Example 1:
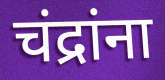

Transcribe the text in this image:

चंद्रांना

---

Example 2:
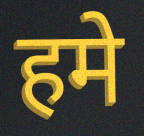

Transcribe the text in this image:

हमे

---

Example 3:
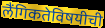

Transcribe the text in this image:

लैंगिकतेविषयीची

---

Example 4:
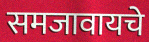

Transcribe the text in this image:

समजावायचे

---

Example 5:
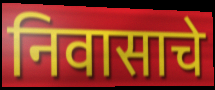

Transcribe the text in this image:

निवासाचे